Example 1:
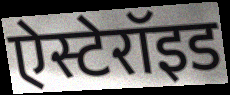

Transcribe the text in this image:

ऐस्टेरॉइड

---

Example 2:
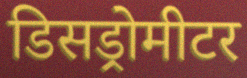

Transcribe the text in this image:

डिसड्रोमीटर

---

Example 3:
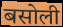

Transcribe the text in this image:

बसोली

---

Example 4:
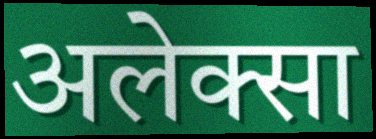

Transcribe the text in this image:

अलेक्‍सा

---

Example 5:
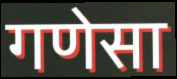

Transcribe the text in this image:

गणेसा